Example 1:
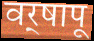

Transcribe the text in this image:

वर्षापू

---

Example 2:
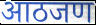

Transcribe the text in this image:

आठजण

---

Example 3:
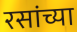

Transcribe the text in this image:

रसांच्या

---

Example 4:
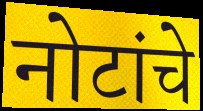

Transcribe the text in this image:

नोटांचे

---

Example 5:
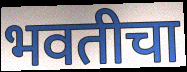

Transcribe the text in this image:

भवतीचा